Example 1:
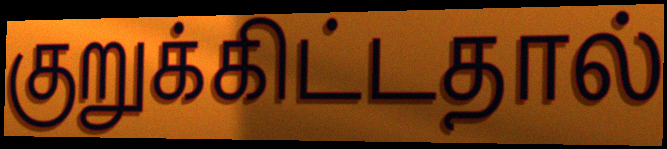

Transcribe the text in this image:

குறுக்கிட்டதால்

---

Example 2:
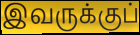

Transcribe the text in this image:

இவருக்குப்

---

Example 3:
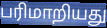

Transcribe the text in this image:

பரிமாறியது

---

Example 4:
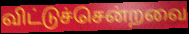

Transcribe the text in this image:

விட்டுச்சென்றவை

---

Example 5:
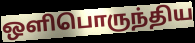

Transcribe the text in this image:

ஒளிபொருந்திய